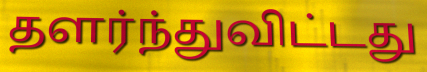
தளர்ந்துவிட்டது